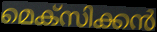
മെക്സിക്കൻ